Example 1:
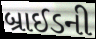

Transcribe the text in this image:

બ્રાઈડની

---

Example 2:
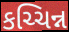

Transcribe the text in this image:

કચ્ચિન્ન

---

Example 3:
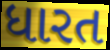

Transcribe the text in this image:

ધારત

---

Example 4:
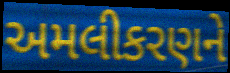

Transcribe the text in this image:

અમલીકરણને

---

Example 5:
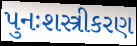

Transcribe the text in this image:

પુનઃશસ્ત્રીકરણ